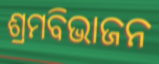
ଶ୍ରମବିଭାଜନ